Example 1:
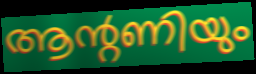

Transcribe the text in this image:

ആന്റണിയും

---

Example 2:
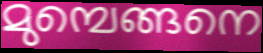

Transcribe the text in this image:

മുമ്പെങ്ങനെ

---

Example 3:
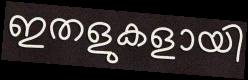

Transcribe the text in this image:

ഇതളുകളായി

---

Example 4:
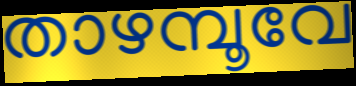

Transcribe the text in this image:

താഴമ്പൂവേ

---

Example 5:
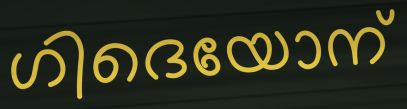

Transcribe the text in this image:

ഗിദെയോന്